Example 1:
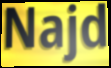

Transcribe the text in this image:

Najd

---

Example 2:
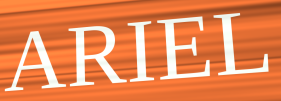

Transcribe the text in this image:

ARIEL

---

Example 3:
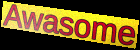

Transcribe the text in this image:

Awasome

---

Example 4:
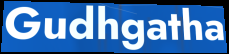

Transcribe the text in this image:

Gudhgatha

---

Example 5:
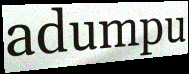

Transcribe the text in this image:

adumpu